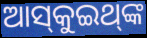
ଆସ୍‌କୁଇଥ୍‌ଙ୍କ